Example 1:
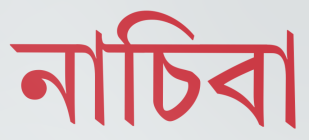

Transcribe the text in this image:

নাচিবা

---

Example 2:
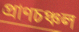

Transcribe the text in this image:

প্ৰাণচঞ্চল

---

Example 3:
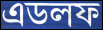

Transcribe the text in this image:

এডলফ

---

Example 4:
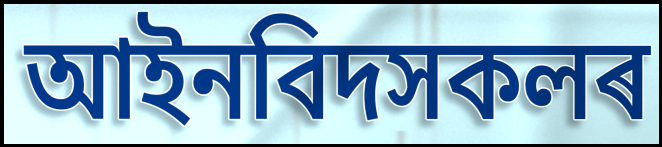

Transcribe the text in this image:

আইনবিদসকলৰ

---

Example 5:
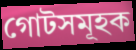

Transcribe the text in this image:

গোটসমূহক